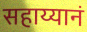
सहाय्यानं